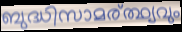
ബുദ്ധിസാമര്ത്ഥ്യവും